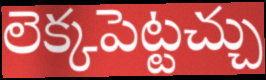
లెక్కపెట్టచ్చు